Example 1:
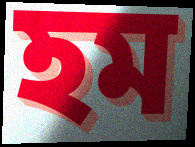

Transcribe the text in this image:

হম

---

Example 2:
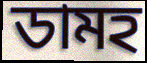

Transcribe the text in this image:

ডামহ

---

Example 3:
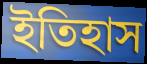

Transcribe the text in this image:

ইতিহাস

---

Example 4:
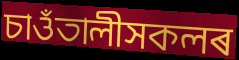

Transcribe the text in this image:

চাওঁতালীসকলৰ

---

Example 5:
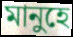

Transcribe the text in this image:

মানুহে